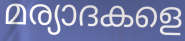
മര്യാദകളെ